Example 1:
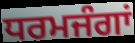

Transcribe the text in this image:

ਧਰਮਜੰਗਾਂ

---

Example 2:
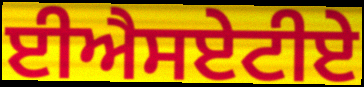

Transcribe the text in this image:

ਈਐਸਏਟੀਏ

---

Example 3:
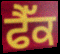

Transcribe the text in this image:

ਫੈੱਕ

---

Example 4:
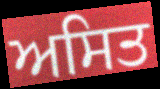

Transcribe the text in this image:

ਅਸਿਤ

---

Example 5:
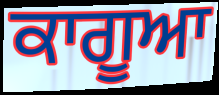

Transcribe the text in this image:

ਕਾਗੂਆ